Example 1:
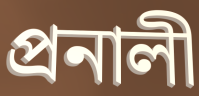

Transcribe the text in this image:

প্রনালী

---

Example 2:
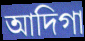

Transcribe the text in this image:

আদিগা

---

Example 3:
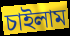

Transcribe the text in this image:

চাইলাম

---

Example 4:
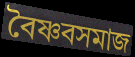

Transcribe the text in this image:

বৈষ্ণবসমাজ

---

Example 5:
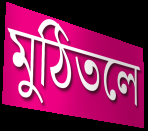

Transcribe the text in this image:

মুঠিতলে